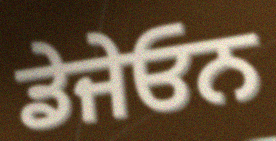
ਡੇਜੇਓਨ